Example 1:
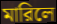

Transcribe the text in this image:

মারিলে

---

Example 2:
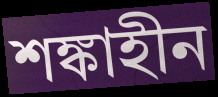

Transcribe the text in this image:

শঙ্কাহীন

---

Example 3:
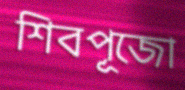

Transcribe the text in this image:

শিবপূজো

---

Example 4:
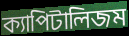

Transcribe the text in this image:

ক্যাপিটালিজম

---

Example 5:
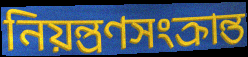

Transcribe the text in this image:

নিয়ন্ত্রণসংক্রান্ত